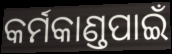
କର୍ମକାଣ୍ଡପାଇଁ